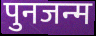
पुनजन्म